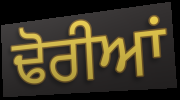
ਢੋਰੀਆਂ